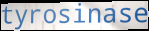
tyrosinase